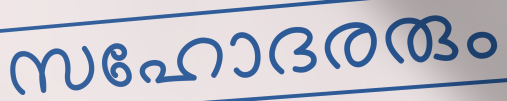
സഹോദരരും